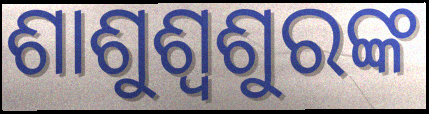
ଶାଶୁଶ୍ୱଶୁରଙ୍କ